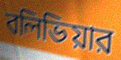
বলিভিয়ার